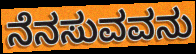
ನೆನಸುವವನು